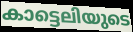
കാട്ടെലിയുടെ